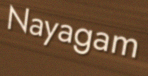
Nayagam